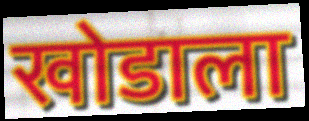
खोडाला